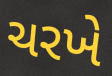
ચરખે